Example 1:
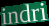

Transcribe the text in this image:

indri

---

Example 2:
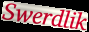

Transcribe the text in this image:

Swerdlik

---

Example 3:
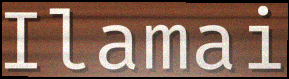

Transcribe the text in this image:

Ilamai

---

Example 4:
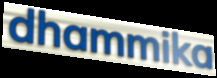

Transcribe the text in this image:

dhammika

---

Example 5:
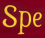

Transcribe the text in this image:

Spe